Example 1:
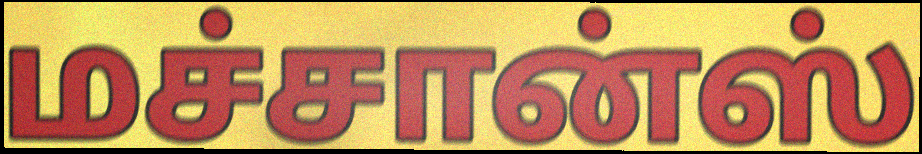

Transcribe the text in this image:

மச்சான்ஸ்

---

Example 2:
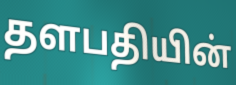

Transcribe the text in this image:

தளபதியின்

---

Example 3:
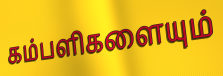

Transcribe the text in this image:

கம்பளிகளையும்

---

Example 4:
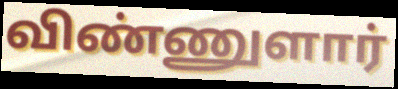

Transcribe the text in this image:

விண்ணுளார்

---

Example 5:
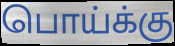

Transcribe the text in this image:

பொய்க்கு